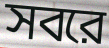
সবরে